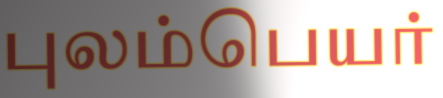
புலம்பெயர்